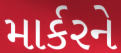
માર્કરને